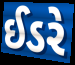
ઈડરે